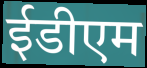
ईडीएम